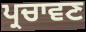
ਪ੍ਰਚਾਵਣ